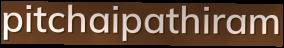
pitchaipathiram